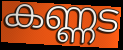
കണ്ണട